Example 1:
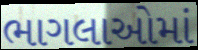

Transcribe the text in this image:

ભાગલાઓમાં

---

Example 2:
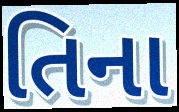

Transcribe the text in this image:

તિના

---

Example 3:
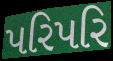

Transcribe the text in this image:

પરિપરિ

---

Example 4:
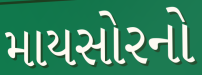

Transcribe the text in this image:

માયસોરનો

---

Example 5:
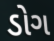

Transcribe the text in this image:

ડોગ